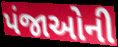
પંજાઓની